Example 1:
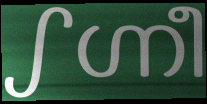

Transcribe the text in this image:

ഽഗ്നീ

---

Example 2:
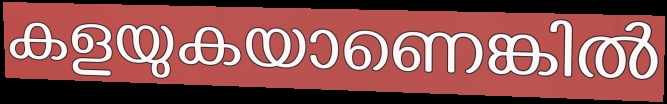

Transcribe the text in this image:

കളയുകയാണെങ്കിൽ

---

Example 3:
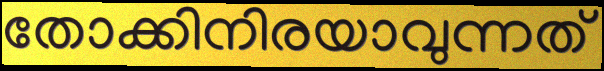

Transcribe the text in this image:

തോക്കിനിരയാവുന്നത്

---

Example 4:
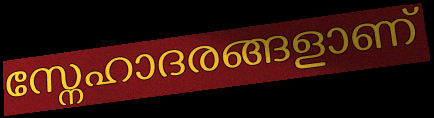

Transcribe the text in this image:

സ്നേഹാദരങ്ങളാണ്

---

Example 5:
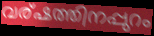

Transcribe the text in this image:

വര്ഷത്തിനപ്പുറം